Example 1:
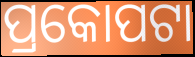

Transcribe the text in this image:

ପ୍ରକୋପଟା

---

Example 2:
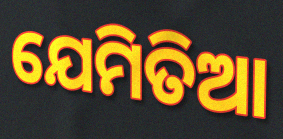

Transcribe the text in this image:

ଯେମିତିଆ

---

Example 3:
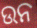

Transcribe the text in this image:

ଉନ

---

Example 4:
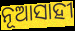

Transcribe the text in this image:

ନୂଆସାହୀ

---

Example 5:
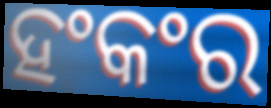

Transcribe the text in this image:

ହଂକଂର